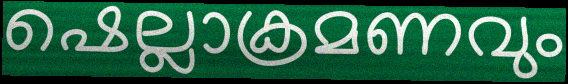
ഷെല്ലാക്രമണവും